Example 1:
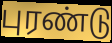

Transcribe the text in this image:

புரண்டு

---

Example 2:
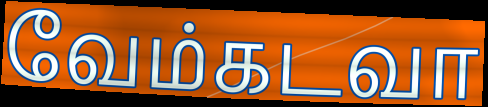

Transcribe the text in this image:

வேம்கடவா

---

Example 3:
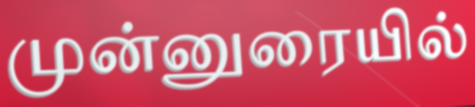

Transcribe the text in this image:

முன்னுரையில்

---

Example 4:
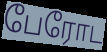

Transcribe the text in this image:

பேரோட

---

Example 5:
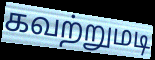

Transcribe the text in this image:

கவற்றுமடி